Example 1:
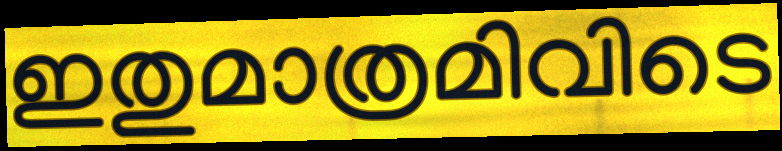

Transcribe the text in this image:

ഇതുമാത്രമിവിടെ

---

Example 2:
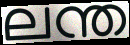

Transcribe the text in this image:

ലന്ത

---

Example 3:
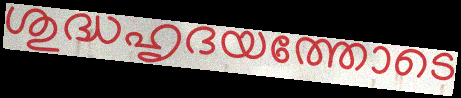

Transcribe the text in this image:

ശുദ്ധഹൃദയത്തോടെ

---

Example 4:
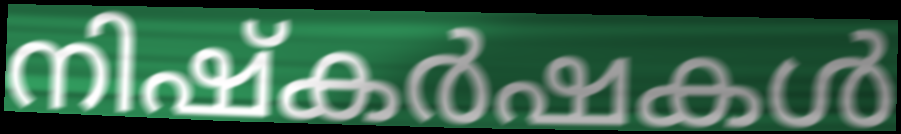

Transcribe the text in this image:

നിഷ്കർഷകൾ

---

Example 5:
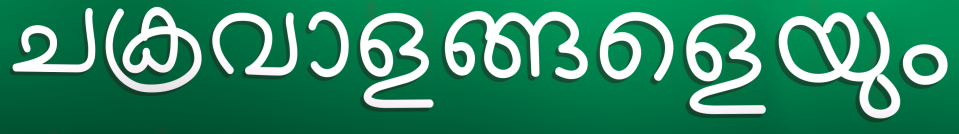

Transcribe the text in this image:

ചക്രവാളങ്ങളെയും